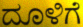
ದೂಳಿಗೆ